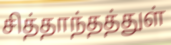
சித்தாந்தத்துள்